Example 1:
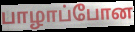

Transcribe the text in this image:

பாழாப்போன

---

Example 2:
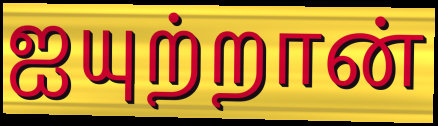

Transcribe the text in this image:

ஐயுற்றான்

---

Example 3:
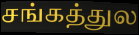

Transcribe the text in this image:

சங்கத்துல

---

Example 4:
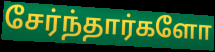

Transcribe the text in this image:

சேர்ந்தார்களோ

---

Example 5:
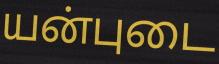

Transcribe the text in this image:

யன்புடை